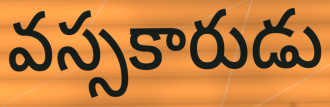
వస్సకారుడు